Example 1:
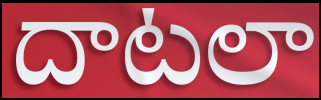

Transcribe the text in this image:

దాటలా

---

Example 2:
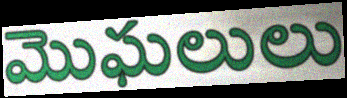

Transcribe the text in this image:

మొఘలులు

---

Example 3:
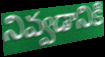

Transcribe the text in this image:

నివ్వడానికి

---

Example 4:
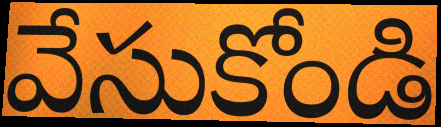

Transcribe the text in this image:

వేసుకోండి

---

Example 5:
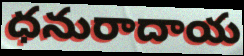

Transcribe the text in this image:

ధనురాదాయ